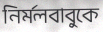
নির্মলবাবুকে